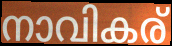
നാവികര്